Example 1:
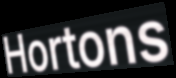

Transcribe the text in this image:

Hortons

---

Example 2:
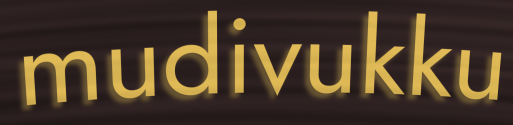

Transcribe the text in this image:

mudivukku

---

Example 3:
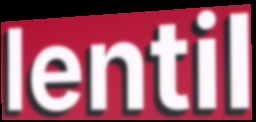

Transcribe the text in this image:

lentil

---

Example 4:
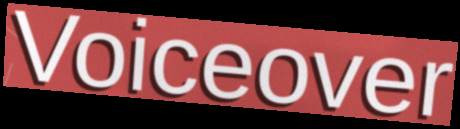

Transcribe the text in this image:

Voiceover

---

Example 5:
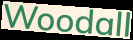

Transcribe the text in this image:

Woodall